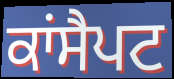
ਕਾਂਸੈਪਟ